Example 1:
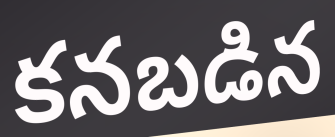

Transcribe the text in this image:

కనబడిన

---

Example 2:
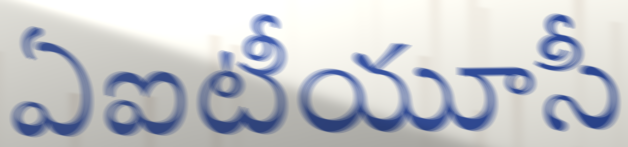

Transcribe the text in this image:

ఏఐటీయూసీ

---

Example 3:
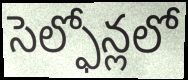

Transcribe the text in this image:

సెల్ఫోన్లలో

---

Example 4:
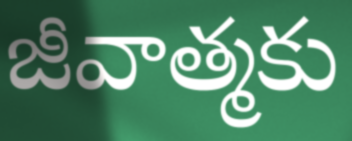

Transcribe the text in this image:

జీవాత్మకు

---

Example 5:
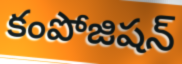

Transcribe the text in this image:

కంపోజిషన్